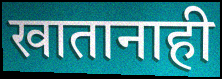
खातानाही